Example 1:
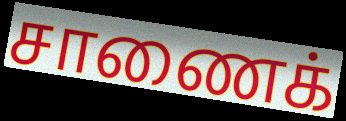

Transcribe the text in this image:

சாணைக்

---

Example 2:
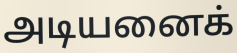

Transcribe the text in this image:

அடியனைக்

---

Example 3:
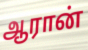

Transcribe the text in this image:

ஆரான்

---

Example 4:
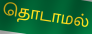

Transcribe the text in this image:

தொடாமல்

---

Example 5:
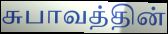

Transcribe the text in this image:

சுபாவத்தின்